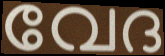
വേദ